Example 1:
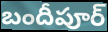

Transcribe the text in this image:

బందీపూర్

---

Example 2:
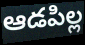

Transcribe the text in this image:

ఆడపిల్ల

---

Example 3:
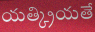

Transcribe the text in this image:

యత్క్రియతే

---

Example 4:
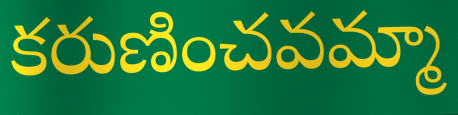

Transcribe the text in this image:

కరుణించవమ్మా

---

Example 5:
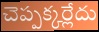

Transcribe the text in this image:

చెప్పక్కర్లేదు